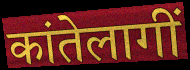
कांतेलागीं